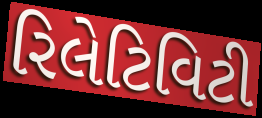
રિલેટિવિટી